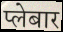
प्लेबार